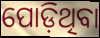
ପୋଡ଼ିଥିବା